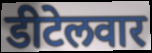
डीटेलवार